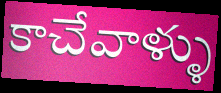
కాచేవాళ్ళు